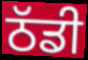
ਠੱਡੀ